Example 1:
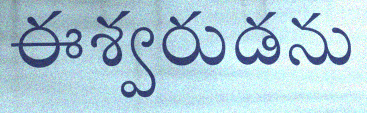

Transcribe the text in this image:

ఈశ్వరుడను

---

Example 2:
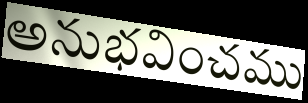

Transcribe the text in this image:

అనుభవించము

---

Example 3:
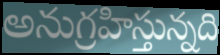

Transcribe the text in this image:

అనుగ్రహిస్తున్నది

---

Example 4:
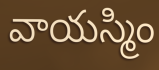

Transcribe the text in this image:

వాయస్మిం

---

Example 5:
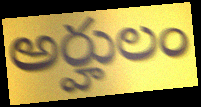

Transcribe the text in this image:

అర్హులం